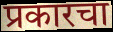
प्रकारचा